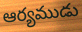
ఆర్యముడు